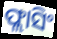
ଫ୍ଲାସିଂ